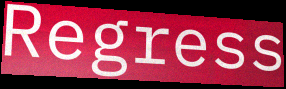
Regress